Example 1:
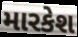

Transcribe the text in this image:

મારકેશ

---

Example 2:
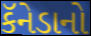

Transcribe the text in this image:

કૅનેડાનો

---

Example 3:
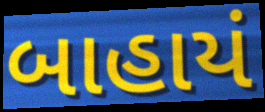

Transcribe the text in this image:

બાહાયં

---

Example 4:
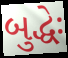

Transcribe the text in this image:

બુદ્ધેઃ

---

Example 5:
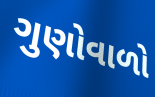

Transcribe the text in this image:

ગુણોવાળો